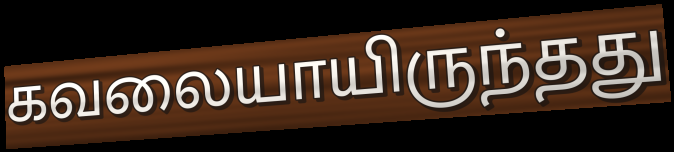
கவலையாயிருந்தது